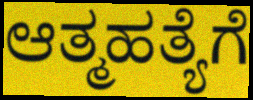
ಆತ್ಮಹತ್ಯೆಗೆ